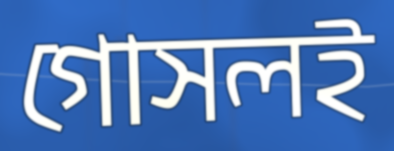
গোসলই